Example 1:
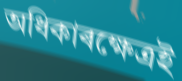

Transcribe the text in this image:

অধিকাৰক্ষেত্ৰই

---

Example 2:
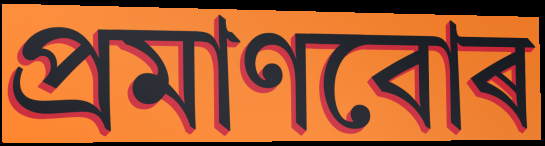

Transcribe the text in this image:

প্ৰমাণবোৰ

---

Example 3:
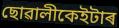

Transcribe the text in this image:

ছোৱালীকেইটাৰ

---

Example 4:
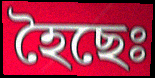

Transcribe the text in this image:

হৈছেঃ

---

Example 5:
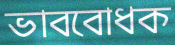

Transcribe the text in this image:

ভাববোধক